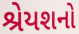
શ્રેયશનો